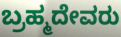
ಬ್ರಹ್ಮದೇವರು